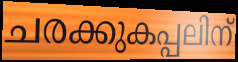
ചരക്കുകപ്പലിന്